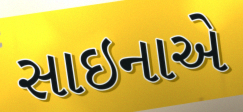
સાઇનાએ